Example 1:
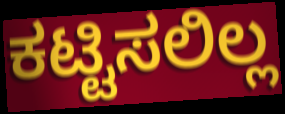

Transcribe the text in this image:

ಕಟ್ಟಿಸಲಿಲ್ಲ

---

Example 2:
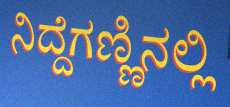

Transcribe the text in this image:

ನಿದ್ದೆಗಣ್ಣಿನಲ್ಲಿ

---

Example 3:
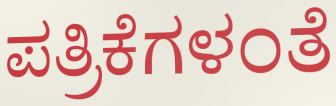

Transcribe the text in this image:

ಪತ್ರಿಕೆಗಳಂತೆ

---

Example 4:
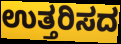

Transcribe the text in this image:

ಉತ್ತರಿಸದ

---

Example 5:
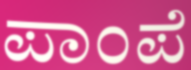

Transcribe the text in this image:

ಪಾಂಪೆ